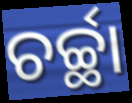
ଚର୍ଚ୍ଛା